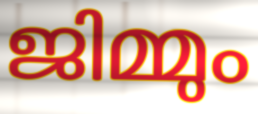
ജിമ്മും